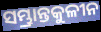
ସମ୍ଭ୍ରାନ୍ତକୁଳୀନ